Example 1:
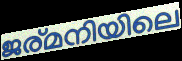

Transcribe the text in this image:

ജര്മനിയിലെ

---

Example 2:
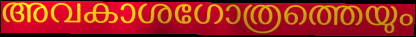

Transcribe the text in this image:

അവകാശഗോത്രത്തെയും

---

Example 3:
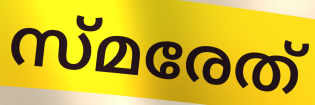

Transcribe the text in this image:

സ്മരേത്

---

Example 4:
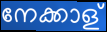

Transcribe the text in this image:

നേക്കാള്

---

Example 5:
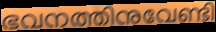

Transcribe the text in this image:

ഭവനത്തിനുവേണ്ടി